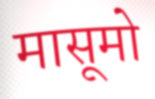
मासूमो